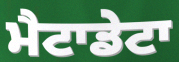
ਮੈਟਾਡੇਟਾ